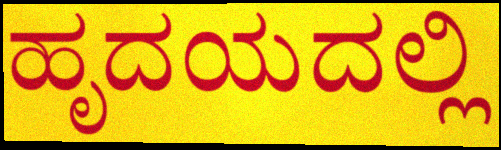
ಹೃದಯದಲ್ಲಿ